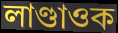
লাণ্ডাওক